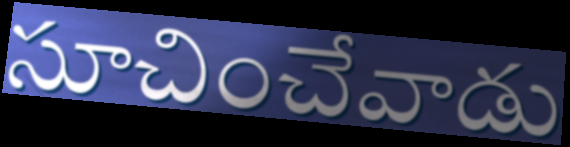
సూచించేవాడు